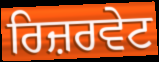
ਰਿਜ਼ਰਵੇਟ